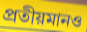
প্রতীয়মানও